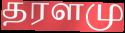
தரளமு